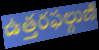
ఉత్తరఫల్గుణి